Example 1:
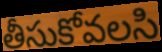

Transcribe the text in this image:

తీసుకోవలసి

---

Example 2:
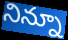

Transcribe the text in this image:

నిన్నూ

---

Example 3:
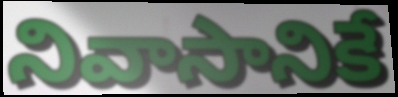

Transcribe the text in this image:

నివాసానికే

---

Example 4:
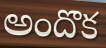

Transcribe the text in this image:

అందొక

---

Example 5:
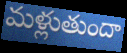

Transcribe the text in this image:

మళ్లుతుందా